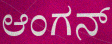
ಆಂಗನ್